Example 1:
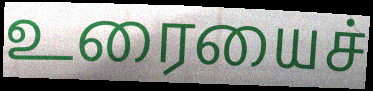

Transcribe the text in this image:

உரையைச்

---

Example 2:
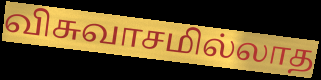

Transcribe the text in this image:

விசுவாசமில்லாத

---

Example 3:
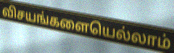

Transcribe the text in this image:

விசயங்களையெல்லாம்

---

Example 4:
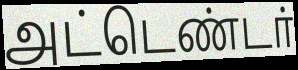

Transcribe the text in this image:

அட்டெண்டர்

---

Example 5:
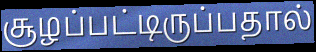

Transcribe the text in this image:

சூழப்பட்டிருப்பதால்